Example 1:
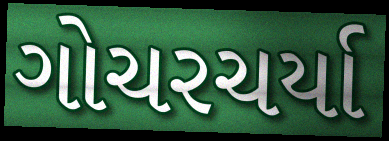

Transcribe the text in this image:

ગોચરચર્યા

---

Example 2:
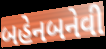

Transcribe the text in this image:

બહેનબનેવી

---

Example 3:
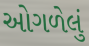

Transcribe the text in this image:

ઓગળેલું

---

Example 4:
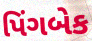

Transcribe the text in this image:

પિંગબેક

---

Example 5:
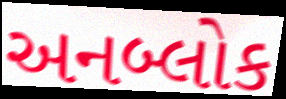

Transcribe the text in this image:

અનબ્લોક